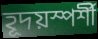
হূদয়স্পর্শী